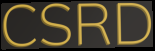
CSRD